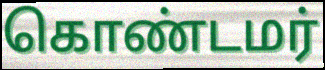
கொண்டமர்